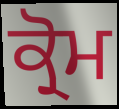
ਕ੍ਰੋਮ